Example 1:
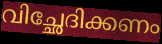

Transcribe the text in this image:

വിച്ഛേദിക്കണം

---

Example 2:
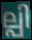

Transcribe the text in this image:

ല്പി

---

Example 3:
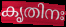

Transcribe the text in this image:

കൃതിനഃ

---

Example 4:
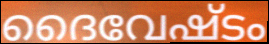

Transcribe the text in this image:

ദൈവേഷ്ടം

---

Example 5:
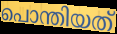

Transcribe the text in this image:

പൊന്തിയത്